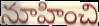
నూహించి